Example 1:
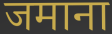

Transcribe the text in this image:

जमाना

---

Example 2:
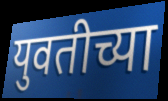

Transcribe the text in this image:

युवतीच्या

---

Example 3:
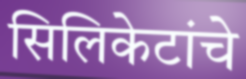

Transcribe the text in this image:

सिलिकेटांचे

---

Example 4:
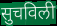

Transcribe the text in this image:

सुचविली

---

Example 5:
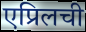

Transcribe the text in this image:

एप्रिलची